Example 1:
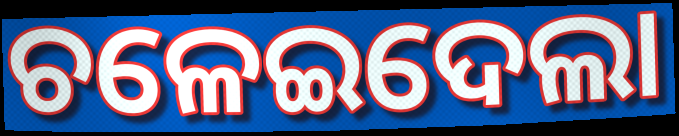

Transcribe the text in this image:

ଚଳେଇଦେଲା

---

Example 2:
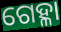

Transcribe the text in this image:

ଗେହ୍ଳା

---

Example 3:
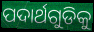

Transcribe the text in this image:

ପଦାର୍ଥଗୁଡିକୁ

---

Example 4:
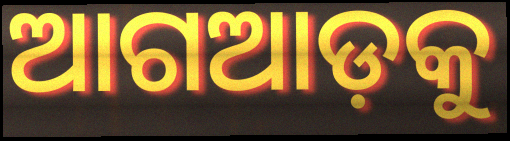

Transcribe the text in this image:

ଆଗଆଡ଼କୁ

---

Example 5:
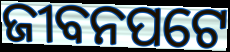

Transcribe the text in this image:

ଜୀବନପଟେ